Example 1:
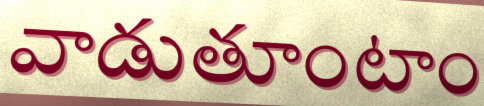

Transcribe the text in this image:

వాడుతూంటాం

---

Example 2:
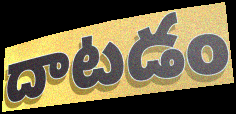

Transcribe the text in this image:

దాటడం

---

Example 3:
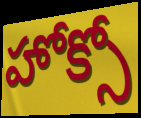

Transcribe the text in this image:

హోక్సో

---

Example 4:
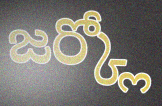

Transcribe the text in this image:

జర్క్లో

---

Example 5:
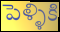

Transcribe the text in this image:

పెళ్ళికి